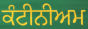
ਕੰਟੀਨੀਅਮ